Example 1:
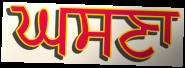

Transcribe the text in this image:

ਘਸਣਾ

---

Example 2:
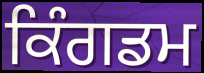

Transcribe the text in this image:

ਕਿੰਗਡਮ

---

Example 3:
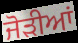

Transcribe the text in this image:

ਜੋਡ਼ੀਆਂ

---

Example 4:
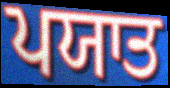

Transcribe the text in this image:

ਪਯਾਤ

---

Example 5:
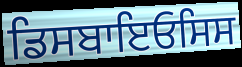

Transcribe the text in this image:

ਡਿਸਬਾਇਓਸਿਸ